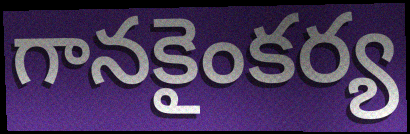
గానకైంకర్య